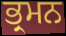
ਭ੍ਰਮਨ